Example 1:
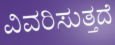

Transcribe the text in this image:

ವಿವರಿಸುತ್ತದೆ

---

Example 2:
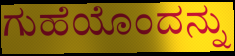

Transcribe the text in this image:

ಗುಹೆಯೊಂದನ್ನು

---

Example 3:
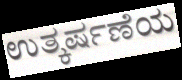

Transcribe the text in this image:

ಉತ್ಕರ್ಷಣೆಯ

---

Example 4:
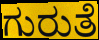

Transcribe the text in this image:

ಗುರುತೆ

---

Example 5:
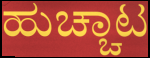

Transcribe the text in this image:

ಹುಚ್ಚಾಟ